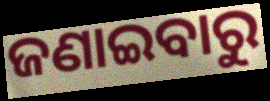
ଜଣାଇବାରୁ